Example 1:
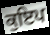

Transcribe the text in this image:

ਕੁਇਪ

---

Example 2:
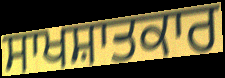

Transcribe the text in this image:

ਸਾਖਸ਼ਾਤਕਾਰ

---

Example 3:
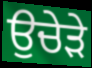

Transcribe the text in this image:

ਉਚੇੜੇ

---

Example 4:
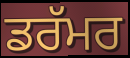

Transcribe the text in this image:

ਡਰੱਮਰ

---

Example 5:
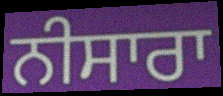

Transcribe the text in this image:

ਨੀਸਾਰਾ